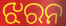
ଝରନ